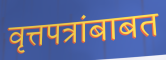
वृत्तपत्रांबाबत